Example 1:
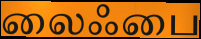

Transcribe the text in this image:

லைஃபை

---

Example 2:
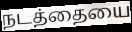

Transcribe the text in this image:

நடத்தையை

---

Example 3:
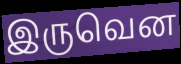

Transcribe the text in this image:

இருவென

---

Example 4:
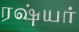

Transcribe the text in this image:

ரஷ்யர்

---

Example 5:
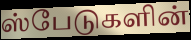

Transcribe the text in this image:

ஸ்பேடுகளின்